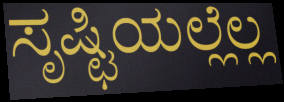
ಸೃಷ್ಟಿಯಲ್ಲೆಲ್ಲ